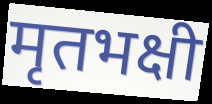
मृतभक्षी